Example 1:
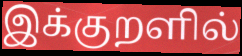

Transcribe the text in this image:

இக்குறளில்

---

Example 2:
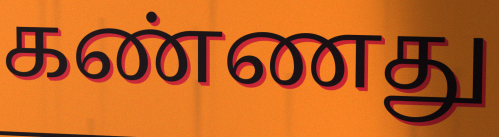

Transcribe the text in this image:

கண்ணது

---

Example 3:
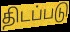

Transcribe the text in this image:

திடப்படு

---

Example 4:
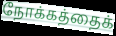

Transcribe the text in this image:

நோக்கத்தைக்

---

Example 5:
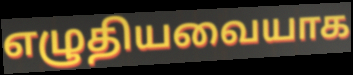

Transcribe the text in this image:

எழுதியவையாக